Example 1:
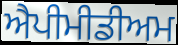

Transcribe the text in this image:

ਐਪੀਮੀਡੀਅਮ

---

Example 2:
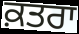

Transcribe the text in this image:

ਕ਼ਤਰਾ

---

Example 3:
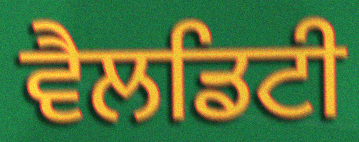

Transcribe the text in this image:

ਵੈਲਡਿਟੀ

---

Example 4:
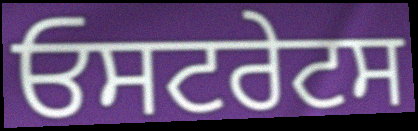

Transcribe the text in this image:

ਓਸਟਰੇਟਸ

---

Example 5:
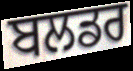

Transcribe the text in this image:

ਬਲਡਰ